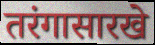
तरंगासारखे